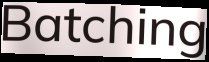
Batching